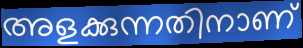
അളക്കുന്നതിനാണ്